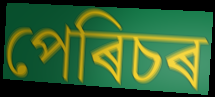
পেৰিচৰ